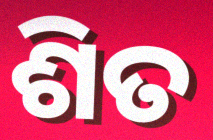
ଶିତ